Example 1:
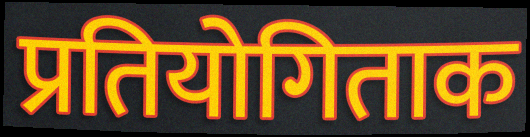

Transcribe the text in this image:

प्रतियोगिताक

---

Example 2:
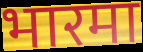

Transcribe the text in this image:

भारमा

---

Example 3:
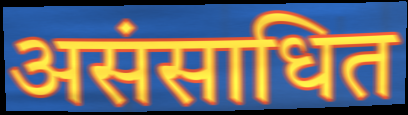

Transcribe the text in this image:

असंसाधित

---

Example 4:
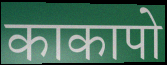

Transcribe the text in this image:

काकापो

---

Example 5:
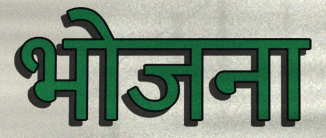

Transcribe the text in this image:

भोजना